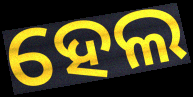
ହେଲ